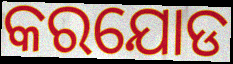
କରଯୋଡ